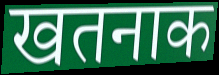
खतनाक